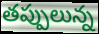
తప్పులున్న